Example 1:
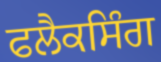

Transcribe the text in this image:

ਫਲੈਕਸਿੰਗ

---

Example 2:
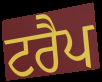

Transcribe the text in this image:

ਟਰੈਪ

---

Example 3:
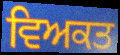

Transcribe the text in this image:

ਵਿਅਕਤ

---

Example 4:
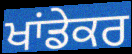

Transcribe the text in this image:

ਖਾਂਡੇਕਰ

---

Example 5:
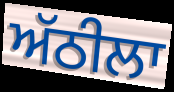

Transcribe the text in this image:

ਅੱਠੀਲਾ